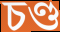
চণ্ড